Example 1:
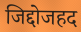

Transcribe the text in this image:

जिद्दोजहद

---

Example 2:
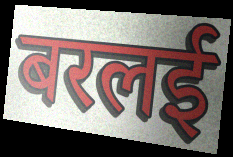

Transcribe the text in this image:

बरलई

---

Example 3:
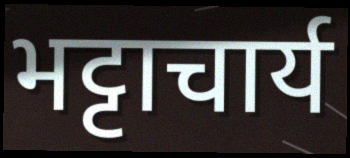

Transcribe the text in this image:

भट्टाचार्य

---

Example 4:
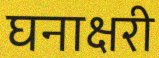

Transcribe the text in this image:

घनाक्षरी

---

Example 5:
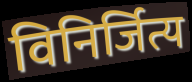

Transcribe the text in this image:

विनिर्जित्य